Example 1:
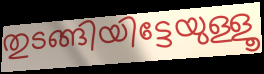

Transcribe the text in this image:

തുടങ്ങിയിട്ടേയുള്ളൂ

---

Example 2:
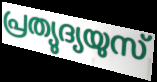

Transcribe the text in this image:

പ്രത്യുദ്യയുസ്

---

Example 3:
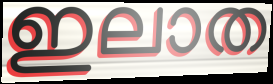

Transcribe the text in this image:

ഇലാത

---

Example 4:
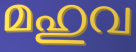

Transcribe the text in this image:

മഹുവ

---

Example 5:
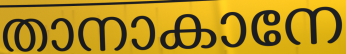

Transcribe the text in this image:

താനാകാനേ